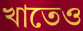
খাতেও